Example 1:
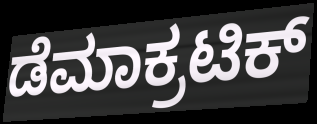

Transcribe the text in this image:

ಡೆಮಾಕ್ರಟಿಕ್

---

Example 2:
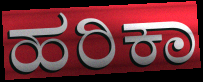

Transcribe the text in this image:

ಹರಿಕಾ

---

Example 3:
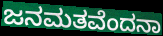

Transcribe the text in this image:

ಜನಮತವೆಂದನಾ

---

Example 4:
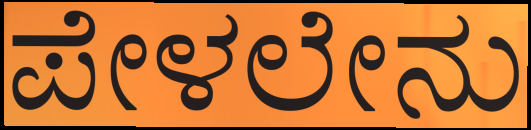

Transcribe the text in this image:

ಪೇಳಲೇನು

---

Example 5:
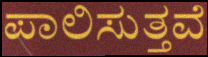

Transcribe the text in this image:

ಪಾಲಿಸುತ್ತವೆ